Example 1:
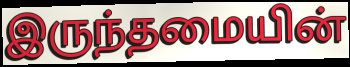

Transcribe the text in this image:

இருந்தமையின்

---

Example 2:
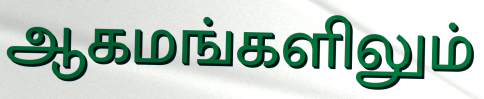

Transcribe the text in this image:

ஆகமங்களிலும்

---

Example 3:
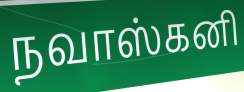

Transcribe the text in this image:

நவாஸ்கனி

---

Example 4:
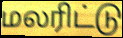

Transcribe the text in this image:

மலரிட்டு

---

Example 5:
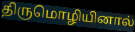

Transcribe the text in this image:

திருமொழியினால்